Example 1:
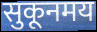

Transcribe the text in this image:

सुकूनमय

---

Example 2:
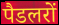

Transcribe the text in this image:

पैडलरों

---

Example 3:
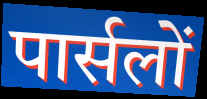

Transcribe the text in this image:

पार्सलों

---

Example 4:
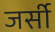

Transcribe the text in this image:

जर्सी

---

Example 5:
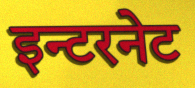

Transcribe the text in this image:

इन्टरनेट